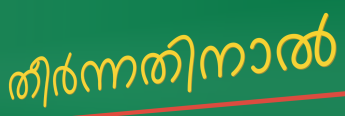
തീർന്നതിനാൽ